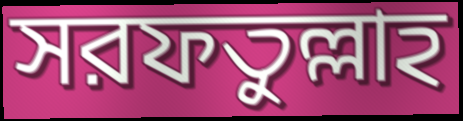
সরফতুল্লাহ